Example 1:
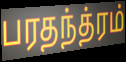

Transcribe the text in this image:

பரதந்த்ரம்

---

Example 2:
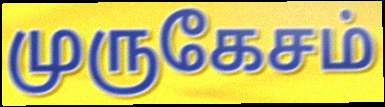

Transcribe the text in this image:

முருகேசம்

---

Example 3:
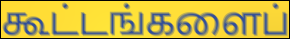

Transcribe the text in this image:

கூட்டங்களைப்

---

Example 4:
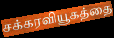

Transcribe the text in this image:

சக்கரவியூகத்தை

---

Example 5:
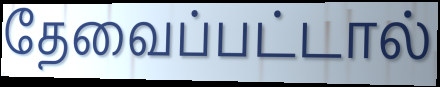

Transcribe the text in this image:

தேவைப்பட்டால்